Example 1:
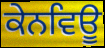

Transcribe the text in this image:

ਕੇਨਵਿਊ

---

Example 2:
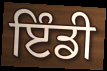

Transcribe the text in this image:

ਇੰਡੀ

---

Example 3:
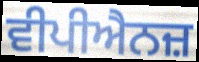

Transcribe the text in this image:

ਵੀਪੀਐਨਜ਼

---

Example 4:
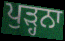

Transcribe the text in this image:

ਪੁੜ੍ਹਨਾ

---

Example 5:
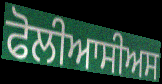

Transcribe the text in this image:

ਫੋਲੀਆਸੀਅਸ